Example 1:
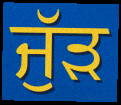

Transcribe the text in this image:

ਜੁੱੜ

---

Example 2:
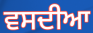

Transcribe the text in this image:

ਵਸਦੀਆ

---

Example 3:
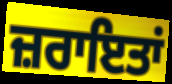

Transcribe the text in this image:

ਜ਼ਰਾਇਤਾਂ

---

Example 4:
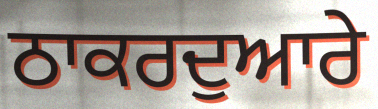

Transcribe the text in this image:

ਠਾਕਰਦੁਆਰੇ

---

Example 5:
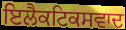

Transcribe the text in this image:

ਇਲੈਕਟਿਕਸਵਾਦ